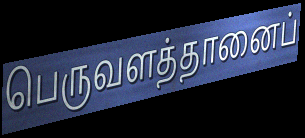
பெருவளத்தானைப்